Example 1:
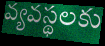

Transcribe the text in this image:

వ్యవస్థలకు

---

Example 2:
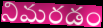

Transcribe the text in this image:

నిమరడం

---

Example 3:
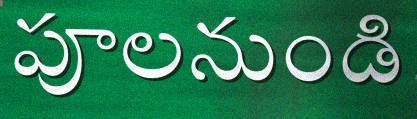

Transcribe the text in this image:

పూలనుండి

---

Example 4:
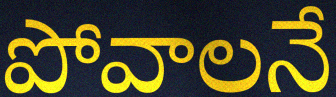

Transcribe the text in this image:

పోవాలనే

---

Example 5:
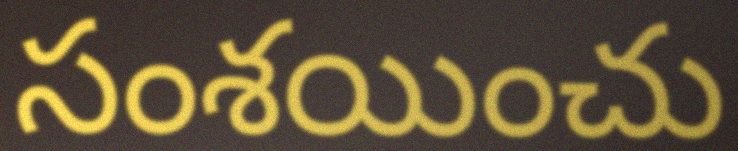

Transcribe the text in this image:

సంశయించు